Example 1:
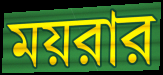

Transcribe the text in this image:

ময়রার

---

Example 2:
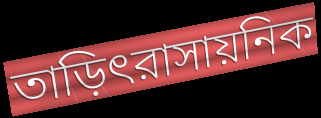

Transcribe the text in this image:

তাড়িৎরাসায়নিক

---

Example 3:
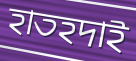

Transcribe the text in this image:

হাতহদাই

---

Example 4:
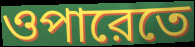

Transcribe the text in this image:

ওপারেতে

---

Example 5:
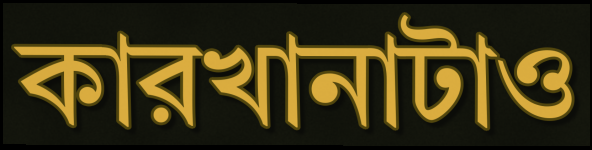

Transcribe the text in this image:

কারখানাটাও